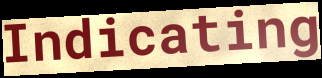
Indicating